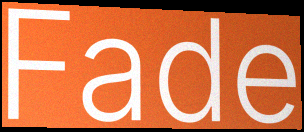
Fade